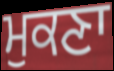
ਮੁਕਣਾ